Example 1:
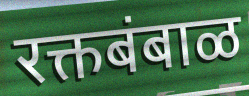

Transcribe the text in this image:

रक्तबंबाळ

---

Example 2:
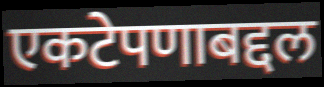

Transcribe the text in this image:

एकटेपणाबद्दल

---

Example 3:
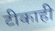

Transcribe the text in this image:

टीकाही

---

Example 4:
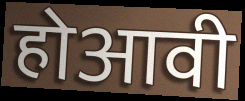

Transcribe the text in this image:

होआवी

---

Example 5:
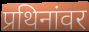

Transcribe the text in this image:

प्रथिनांवर